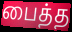
பைத்த